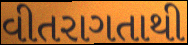
વીતરાગતાથી